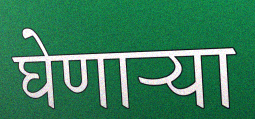
घेणाऱ्या